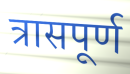
त्रासपूर्ण